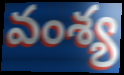
వంశ్య